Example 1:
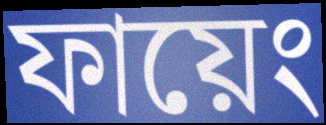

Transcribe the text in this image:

ফায়েং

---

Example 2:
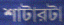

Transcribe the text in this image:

শাটারটা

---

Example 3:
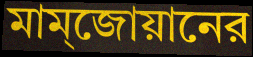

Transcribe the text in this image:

মাম্জোয়ানের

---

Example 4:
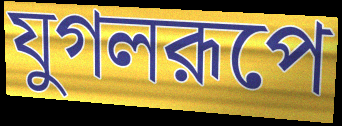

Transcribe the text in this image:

যুগলরূপে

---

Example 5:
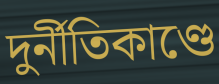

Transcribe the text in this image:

দুর্নীতিকাণ্ডে